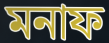
মনাফ